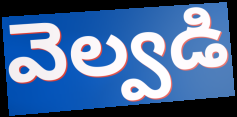
వెల్వడి